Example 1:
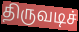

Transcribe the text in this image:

திருவடிச்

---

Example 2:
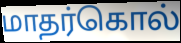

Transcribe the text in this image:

மாதர்கொல்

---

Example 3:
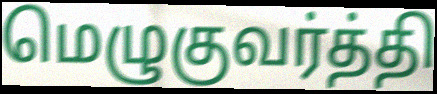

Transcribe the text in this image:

மெழுகுவர்த்தி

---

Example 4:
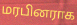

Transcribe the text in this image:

மரபினராக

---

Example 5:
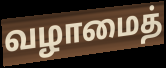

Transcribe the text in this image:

வழாமைத்